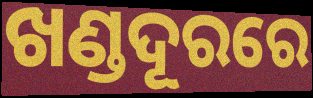
ଖଣ୍ଡଦୂରରେ